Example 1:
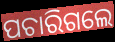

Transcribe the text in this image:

ପଚାରିଗଲେ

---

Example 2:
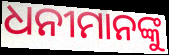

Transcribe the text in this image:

ଧନୀମାନଙ୍କୁ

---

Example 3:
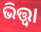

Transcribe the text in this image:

ଭିତ୍ତ୍ୱା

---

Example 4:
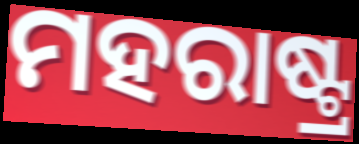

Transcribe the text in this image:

ମହରାଷ୍ଟ୍ର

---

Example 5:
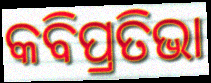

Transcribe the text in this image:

କବିପ୍ରତିଭା